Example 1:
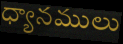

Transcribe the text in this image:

ధ్యానములు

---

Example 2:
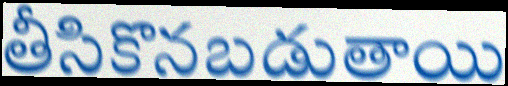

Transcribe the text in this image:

తీసికొనబడుతాయి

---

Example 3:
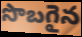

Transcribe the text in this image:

సొబగైన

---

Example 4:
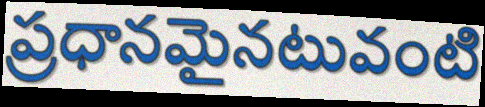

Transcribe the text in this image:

ప్రధానమైనటువంటి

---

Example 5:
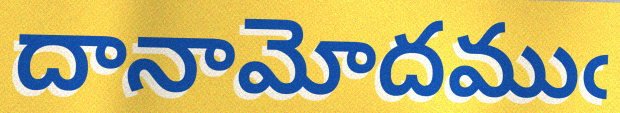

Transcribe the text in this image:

దానామోదముఁ